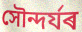
সৌন্দৰ্যৰ